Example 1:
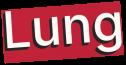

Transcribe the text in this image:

Lung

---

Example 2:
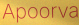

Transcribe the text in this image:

Apoorva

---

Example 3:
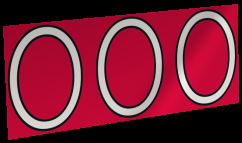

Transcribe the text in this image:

ooo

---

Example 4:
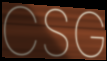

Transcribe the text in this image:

CSG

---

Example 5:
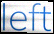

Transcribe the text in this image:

left